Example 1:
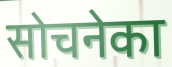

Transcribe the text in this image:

सोचनेका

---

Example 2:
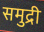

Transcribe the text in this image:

समुद्री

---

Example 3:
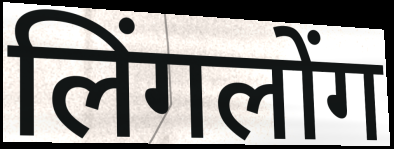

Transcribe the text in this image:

लिंगलोंग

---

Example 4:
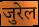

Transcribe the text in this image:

जुरेल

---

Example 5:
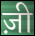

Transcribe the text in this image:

ज़ी